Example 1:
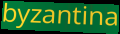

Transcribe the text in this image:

byzantina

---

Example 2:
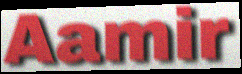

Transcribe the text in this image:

Aamir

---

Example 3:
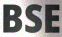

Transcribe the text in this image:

BSE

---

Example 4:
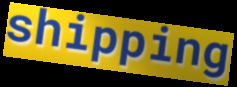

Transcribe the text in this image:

shipping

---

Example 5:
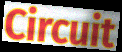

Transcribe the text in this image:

Circuit